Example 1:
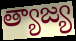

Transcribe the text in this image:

త్యాజ్య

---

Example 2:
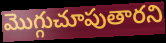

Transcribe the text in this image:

మొగ్గుచూపుతారని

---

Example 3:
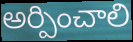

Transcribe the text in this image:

అర్పించాలి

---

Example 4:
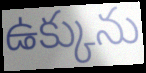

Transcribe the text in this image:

ఉక్కును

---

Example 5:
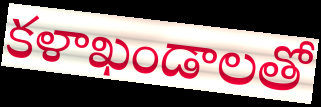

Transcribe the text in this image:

కళాఖండాలతో